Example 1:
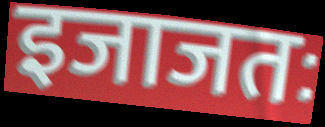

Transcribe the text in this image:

इजाजतः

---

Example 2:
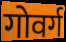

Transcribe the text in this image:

गोवर्ग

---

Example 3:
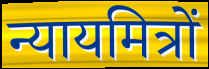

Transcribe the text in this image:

न्यायमित्रों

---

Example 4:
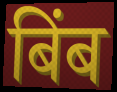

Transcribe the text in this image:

बिंब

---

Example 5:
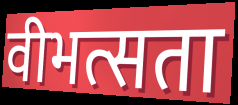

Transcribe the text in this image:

वीभत्सता